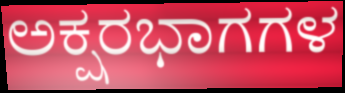
ಅಕ್ಷರಭಾಗಗಳ